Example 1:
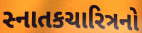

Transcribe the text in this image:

સ્નાતકચારિત્રનો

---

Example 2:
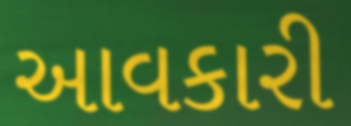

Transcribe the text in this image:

આવકારી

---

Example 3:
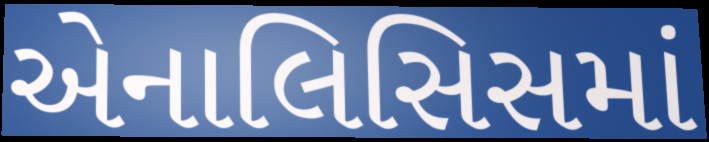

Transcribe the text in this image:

એનાલિસિસમાં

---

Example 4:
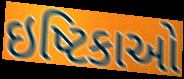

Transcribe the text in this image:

ઇષ્ટિકાઓ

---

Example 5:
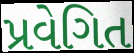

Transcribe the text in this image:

પ્રવેગિત